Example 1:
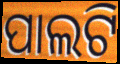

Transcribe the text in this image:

ପାଲଟି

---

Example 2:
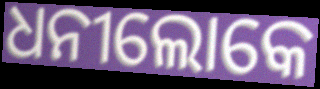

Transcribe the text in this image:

ଧନୀଲୋକେ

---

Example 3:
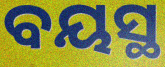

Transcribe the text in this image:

ବୟସ୍ଥ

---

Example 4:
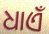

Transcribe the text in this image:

ଧାଏଁ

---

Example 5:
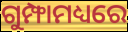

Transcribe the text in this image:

ଗୁମ୍ଫାମଧ୍ୟରେ